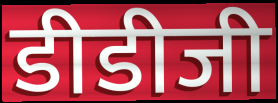
डीडीजी